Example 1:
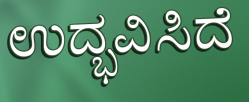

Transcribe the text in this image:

ಉದ್ಭವಿಸಿದೆ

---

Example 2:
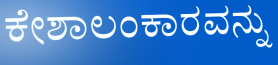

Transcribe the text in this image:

ಕೇಶಾಲಂಕಾರವನ್ನು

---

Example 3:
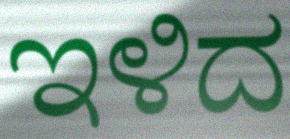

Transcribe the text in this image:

ಇಳಿದ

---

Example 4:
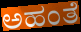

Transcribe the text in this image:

ಅಹಂತೆ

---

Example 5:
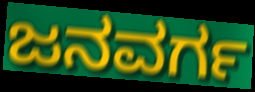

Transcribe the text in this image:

ಜನವರ್ಗ